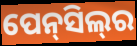
ପେନ୍‌ସିଲ୍‌ର